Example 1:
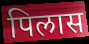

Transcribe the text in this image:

पिलास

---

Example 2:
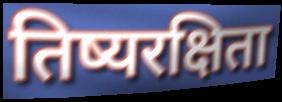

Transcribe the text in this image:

तिष्यरक्षिता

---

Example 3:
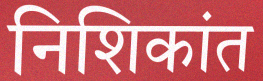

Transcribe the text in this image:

निशिकांत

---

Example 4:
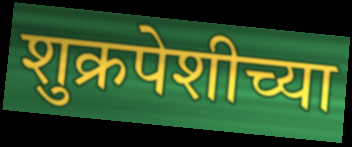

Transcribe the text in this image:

शुक्रपेशीच्या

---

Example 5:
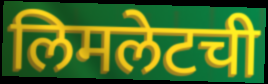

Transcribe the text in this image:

लिमलेटची